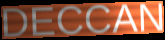
DECCAN